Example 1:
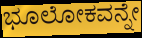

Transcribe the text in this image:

ಭೂಲೋಕವನ್ನೇ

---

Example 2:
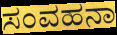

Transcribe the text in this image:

ಸಂವಹನಾ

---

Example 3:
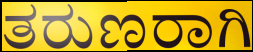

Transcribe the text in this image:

ತರುಣರಾಗಿ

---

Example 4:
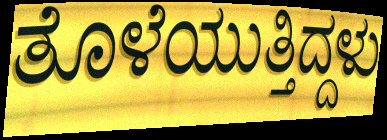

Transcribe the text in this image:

ತೊಳೆಯುತ್ತಿದ್ದಳು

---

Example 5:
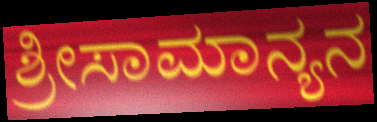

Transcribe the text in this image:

ಶ್ರೀಸಾಮಾನ್ಯನ